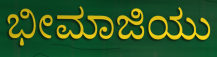
ಭೀಮಾಜಿಯು